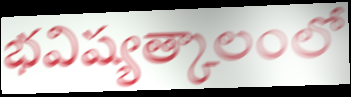
భవిష్యత్కాలంలో